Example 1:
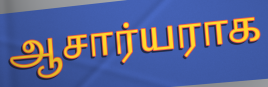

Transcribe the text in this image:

ஆசார்யராக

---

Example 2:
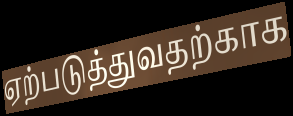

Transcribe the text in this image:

ஏற்படுத்துவதற்காக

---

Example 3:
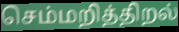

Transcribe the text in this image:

செம்மறித்திறல்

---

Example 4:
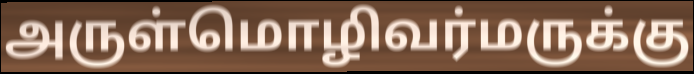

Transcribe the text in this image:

அருள்மொழிவர்மருக்கு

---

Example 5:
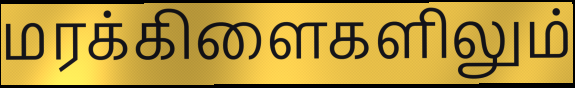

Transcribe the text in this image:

மரக்கிளைகளிலும்